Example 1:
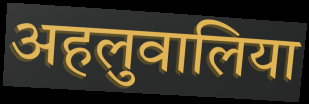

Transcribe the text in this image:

अहलुवालिया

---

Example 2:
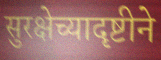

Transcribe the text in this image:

सुरक्षेच्यादृष्टीने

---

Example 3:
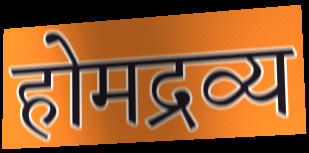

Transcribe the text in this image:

होमद्रव्य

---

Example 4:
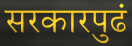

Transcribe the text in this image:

सरकारपुढं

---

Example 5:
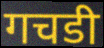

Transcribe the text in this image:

गचडी